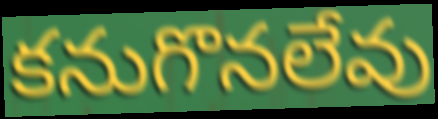
కనుగొనలేవు